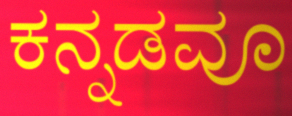
ಕನ್ನಡವೂ